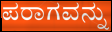
ಪರಾಗವನ್ನು